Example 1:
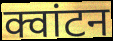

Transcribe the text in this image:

क्वांटन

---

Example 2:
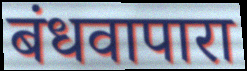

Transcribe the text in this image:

बंधवापारा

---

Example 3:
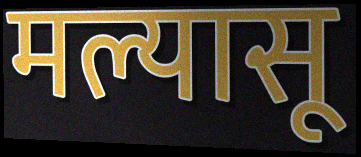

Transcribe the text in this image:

मल्यासू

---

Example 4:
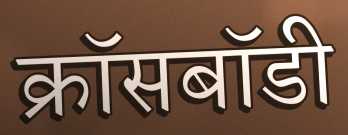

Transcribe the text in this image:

क्रॉसबॉडी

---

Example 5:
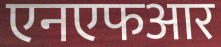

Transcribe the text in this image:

एनएफआर